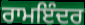
ਰਾਮਇੰਦਰ